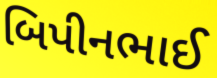
બિપીનભાઈ